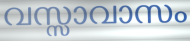
വസ്സാവാസം